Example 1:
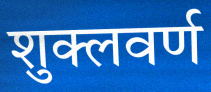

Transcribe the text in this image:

शुक्लवर्ण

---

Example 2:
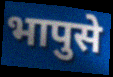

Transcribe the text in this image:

भापुसे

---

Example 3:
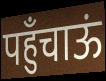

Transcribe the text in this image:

पहुँचाऊं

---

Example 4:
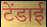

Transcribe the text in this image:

टेंडाई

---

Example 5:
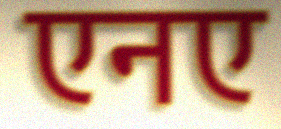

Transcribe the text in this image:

एनए